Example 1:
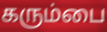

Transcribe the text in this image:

கரும்பை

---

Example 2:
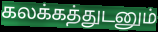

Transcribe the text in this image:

கலக்கத்துடனும்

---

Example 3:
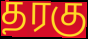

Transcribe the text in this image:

தரகு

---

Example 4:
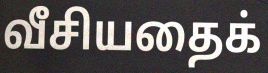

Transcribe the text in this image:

வீசியதைக்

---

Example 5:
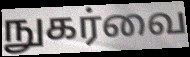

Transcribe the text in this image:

நுகர்வை